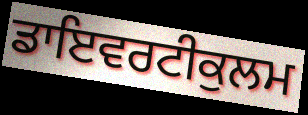
ਡਾਇਵਰਟੀਕੁਲਮ